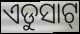
ଏଡୁସାଟ୍